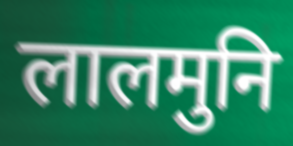
लालमुनि